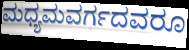
ಮಧ್ಯಮವರ್ಗದವರೂ